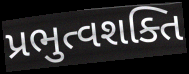
પ્રભુત્વશક્તિ